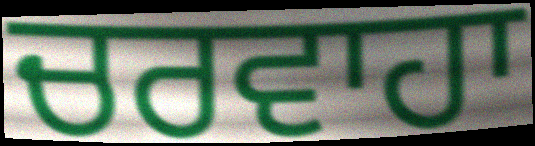
ਚਰਵਾਹਾ